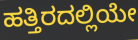
ಹತ್ತಿರದಲ್ಲಿಯೇ